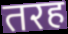
तरह